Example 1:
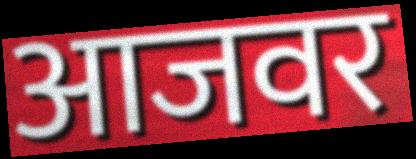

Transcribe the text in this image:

आजवर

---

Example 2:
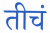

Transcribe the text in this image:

तीचं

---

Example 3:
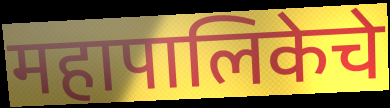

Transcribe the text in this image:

महापालिकेचे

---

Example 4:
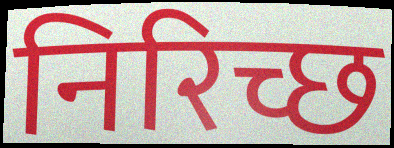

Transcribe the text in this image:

निरिच्छ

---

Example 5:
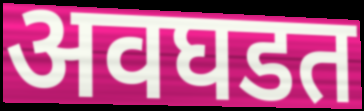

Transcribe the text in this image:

अवघडत